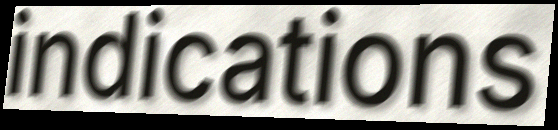
indications